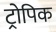
ट्रोपिक